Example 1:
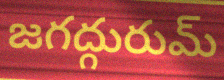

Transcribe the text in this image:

జగద్గురుమ్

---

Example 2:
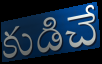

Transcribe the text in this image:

కుడిచే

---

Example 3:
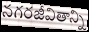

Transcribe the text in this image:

నగరజీవితాన్ని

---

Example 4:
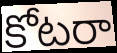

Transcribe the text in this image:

కోటరా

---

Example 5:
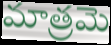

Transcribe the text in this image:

మాత్రమె